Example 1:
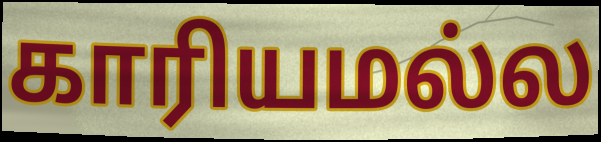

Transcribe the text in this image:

காரியமல்ல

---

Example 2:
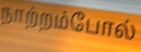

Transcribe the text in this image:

நாற்றம்போல்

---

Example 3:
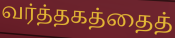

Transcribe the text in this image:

வர்த்தகத்தைத்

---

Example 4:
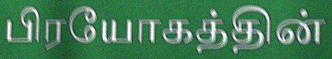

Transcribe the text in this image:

பிரயோகத்தின்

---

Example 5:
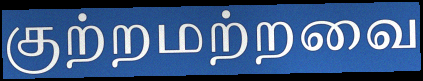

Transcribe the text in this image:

குற்றமற்றவை